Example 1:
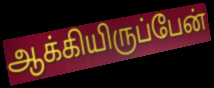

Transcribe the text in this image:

ஆக்கியிருப்பேன்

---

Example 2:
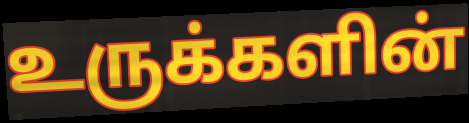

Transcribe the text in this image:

உருக்களின்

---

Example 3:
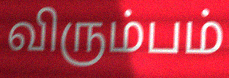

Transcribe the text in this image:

விரும்பம்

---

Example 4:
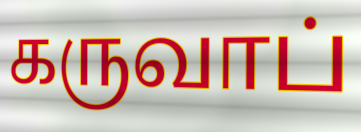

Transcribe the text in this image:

கருவாப்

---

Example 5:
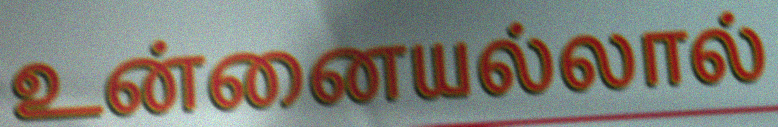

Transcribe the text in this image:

உன்னையல்லால்